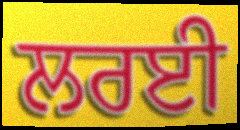
ਲਰਈ